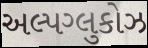
અલ્પગ્લુકોઝ